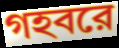
গহবরে